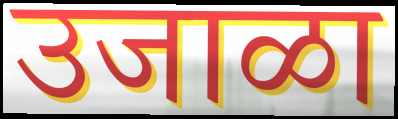
उजाळा